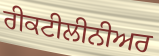
ਰੀਕਟੀਲੀਨੀਅਰ